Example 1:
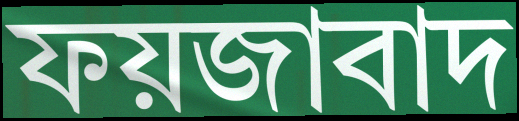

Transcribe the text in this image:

ফয়জাবাদ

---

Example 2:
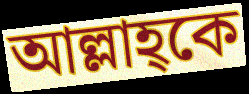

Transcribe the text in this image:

আল্লাহ্কে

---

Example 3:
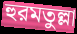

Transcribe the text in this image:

হুরমতুল্লা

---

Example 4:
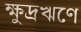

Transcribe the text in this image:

ক্ষুদ্রঋণে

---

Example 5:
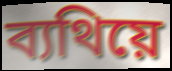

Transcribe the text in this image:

ব্যথিয়ে